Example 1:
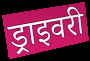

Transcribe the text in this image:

ड्राइवरी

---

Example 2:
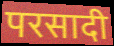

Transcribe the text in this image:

परसादी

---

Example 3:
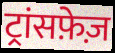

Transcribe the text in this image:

ट्रांसफ़ेज़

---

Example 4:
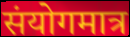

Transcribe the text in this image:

संयोगमात्र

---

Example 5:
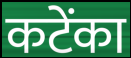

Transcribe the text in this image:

कटेंका